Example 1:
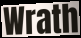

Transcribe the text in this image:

Wrath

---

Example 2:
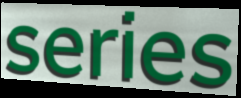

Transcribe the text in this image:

series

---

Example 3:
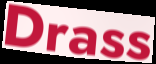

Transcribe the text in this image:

Drass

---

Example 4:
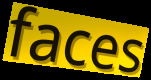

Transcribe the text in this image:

faces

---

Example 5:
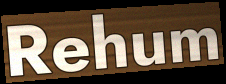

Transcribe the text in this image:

Rehum